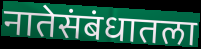
नातेसंबंधातला